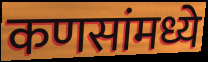
कणसांमध्ये